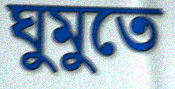
ঘুমুতে